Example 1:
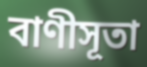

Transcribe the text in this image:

বাণীসূতা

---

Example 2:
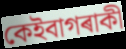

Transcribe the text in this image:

কেইবাগৰাকী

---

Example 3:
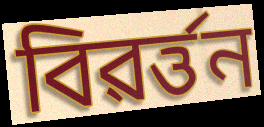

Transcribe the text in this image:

বিৱৰ্ত্তন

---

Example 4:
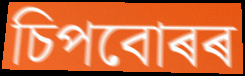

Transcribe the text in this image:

চিপবোৰৰ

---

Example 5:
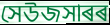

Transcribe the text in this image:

সেউজসাৰৰ